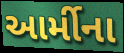
આર્મીના